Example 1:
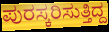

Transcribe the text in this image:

ಪುರಸ್ಕರಿಸುತ್ತಿದ್ದ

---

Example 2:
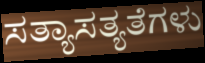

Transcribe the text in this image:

ಸತ್ಯಾಸತ್ಯತೆಗಳು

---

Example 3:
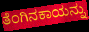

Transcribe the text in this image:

ತೆಂಗಿನಕಾಯನ್ನು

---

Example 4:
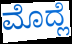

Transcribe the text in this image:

ಮೊದ್ಲೆ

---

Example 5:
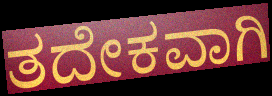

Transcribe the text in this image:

ತದೇಕವಾಗಿ